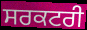
ਸਰਕਟਰੀ